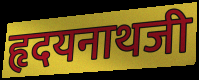
हृदयनाथजी